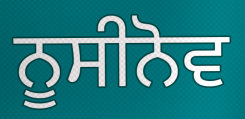
ਨੂਸੀਨੋਵ